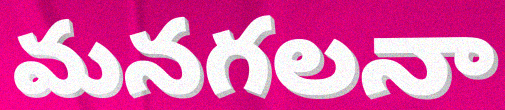
మనగలనా